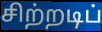
சிற்றடிப்